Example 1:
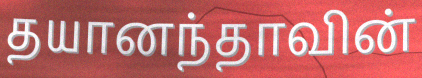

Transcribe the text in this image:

தயானந்தாவின்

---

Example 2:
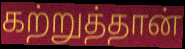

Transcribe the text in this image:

கற்றுத்தான்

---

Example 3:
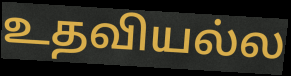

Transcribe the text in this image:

உதவியல்ல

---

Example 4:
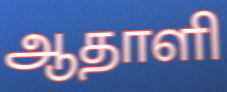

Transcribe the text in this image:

ஆதாளி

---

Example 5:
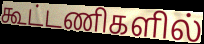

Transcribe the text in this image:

கூட்டணிகளில்